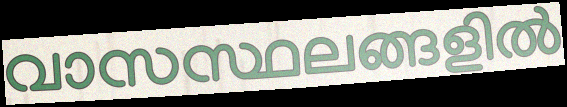
വാസസ്ഥലങ്ങളിൽ